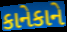
કાનેકાને